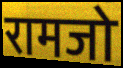
रामजो